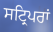
ਸਟ੍ਰਿਪਰਾਂ